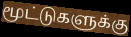
மூட்டுகளுக்கு